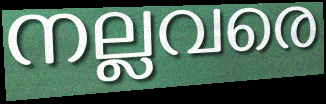
നല്ലവരെ